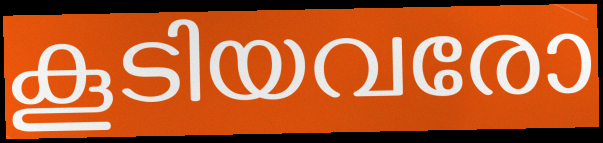
കൂടിയവരോ